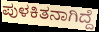
ಪುಳಕಿತನಾಗಿದ್ದೆ